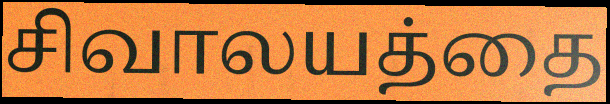
சிவாலயத்தை